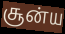
சூன்ய